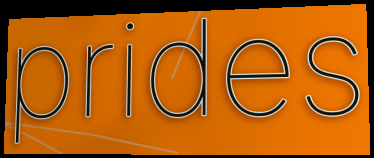
prides